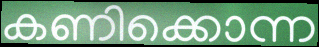
കണിക്കൊന്ന